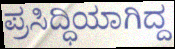
ಪ್ರಸಿದ್ಧಿಯಾಗಿದ್ದ